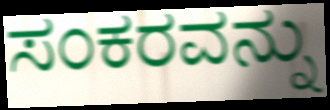
ಸಂಕರವನ್ನು